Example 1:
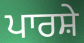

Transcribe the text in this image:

ਪਾਰਸ਼ੇ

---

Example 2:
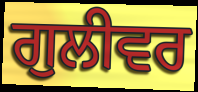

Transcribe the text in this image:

ਗੁਲੀਵਰ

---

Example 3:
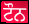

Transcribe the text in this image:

ਟੌਨ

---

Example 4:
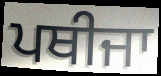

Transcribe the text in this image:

ਪਥੀਜਾ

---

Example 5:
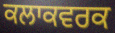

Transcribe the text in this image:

ਕਲਾਕਵਰਕ